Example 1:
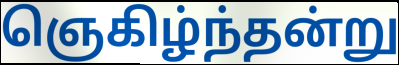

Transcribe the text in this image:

ஞெகிழ்ந்தன்று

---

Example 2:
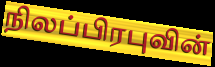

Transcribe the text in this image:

நிலப்பிரபுவின்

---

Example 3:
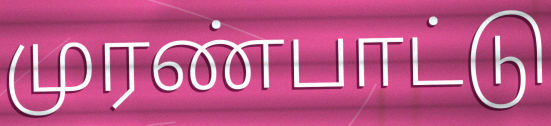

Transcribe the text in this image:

முரண்பாட்டு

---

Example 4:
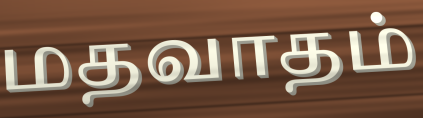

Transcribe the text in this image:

மதவாதம்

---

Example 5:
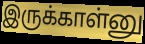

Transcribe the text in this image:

இருக்காள்னு